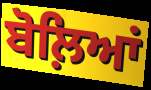
ਬੋਲ਼ਿਆਂ